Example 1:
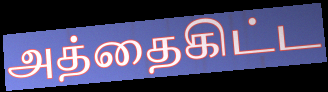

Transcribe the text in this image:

அத்தைகிட்ட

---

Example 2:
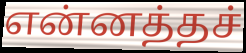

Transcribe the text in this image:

என்னத்தச்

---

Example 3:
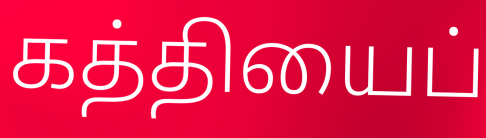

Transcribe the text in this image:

கத்தியைப்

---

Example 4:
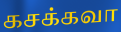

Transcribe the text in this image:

கசக்கவா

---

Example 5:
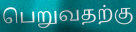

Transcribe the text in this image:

பெறுவதற்கு